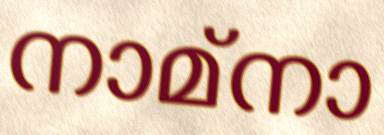
നാമ്നാ